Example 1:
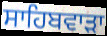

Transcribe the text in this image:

ਸਾਹਿਬਵਾੜਾ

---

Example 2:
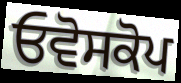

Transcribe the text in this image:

ਓਵੋਸਕੋਪ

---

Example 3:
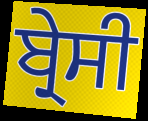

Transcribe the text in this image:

ਬ੍ਰੇਸੀ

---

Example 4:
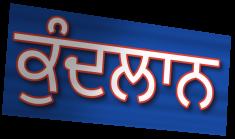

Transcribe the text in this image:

ਕੁੰਦਲਾਨ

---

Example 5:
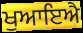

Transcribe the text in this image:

ਖੁਆਇਐ